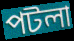
পটলা